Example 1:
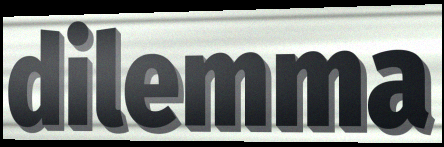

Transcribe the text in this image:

dilemma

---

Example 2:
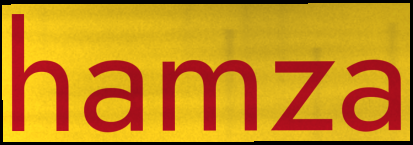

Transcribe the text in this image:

hamza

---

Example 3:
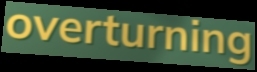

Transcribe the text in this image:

overturning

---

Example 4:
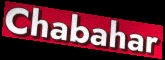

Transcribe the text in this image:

Chabahar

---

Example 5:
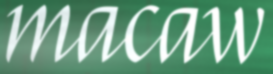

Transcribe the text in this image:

macaw